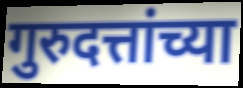
गुरुदत्तांच्या